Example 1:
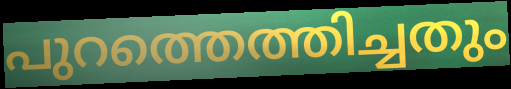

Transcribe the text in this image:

പുറത്തെത്തിച്ചതും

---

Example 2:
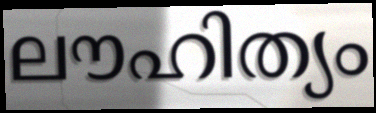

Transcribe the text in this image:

ലൗഹിത്യം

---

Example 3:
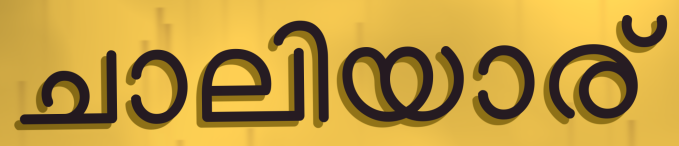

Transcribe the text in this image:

ചാലിയാര്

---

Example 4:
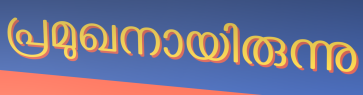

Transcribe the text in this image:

പ്രമുഖനായിരുന്നു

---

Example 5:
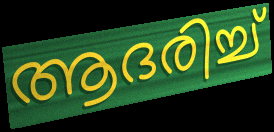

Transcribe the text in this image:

ആദരിച്ച്